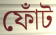
ফোঁট